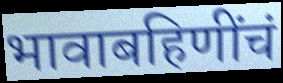
भावाबहिणींचं